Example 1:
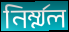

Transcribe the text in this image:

নির্ম্মল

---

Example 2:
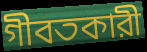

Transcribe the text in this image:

গীবতকারী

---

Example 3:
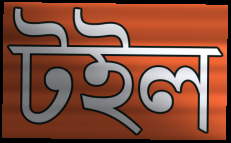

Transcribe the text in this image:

টইল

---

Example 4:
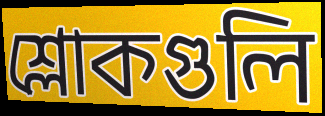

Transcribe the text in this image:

শ্লোকগুলি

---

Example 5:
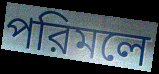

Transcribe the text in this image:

পরিমলে